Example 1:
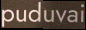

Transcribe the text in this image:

puduvai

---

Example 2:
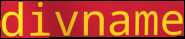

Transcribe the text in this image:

divname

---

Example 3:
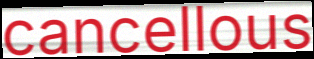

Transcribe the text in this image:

cancellous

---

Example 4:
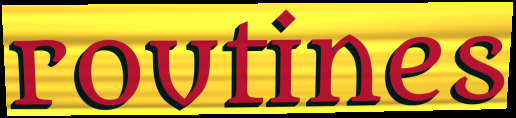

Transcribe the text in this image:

routines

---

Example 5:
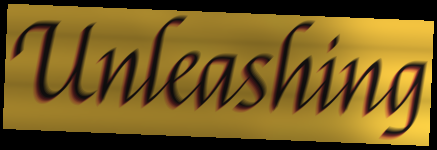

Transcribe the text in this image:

Unleashing